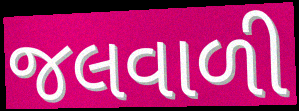
જલવાળી